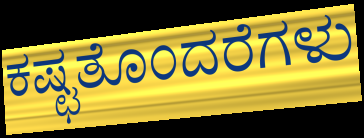
ಕಷ್ಟತೊಂದರೆಗಳು